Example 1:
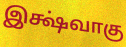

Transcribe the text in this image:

இக்ஷ்வாகு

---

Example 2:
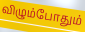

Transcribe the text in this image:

விழும்போதும்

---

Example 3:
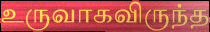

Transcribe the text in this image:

உருவாகவிருந்த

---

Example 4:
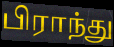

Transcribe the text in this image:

பிராந்து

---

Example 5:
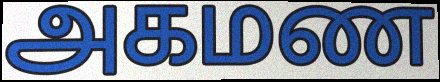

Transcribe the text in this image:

அகமண